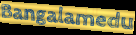
Bangalamedu